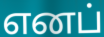
எனப்